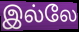
இல்லே